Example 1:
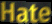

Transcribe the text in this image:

Hate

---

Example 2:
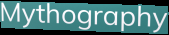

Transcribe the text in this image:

Mythography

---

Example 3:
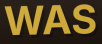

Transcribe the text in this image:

WAS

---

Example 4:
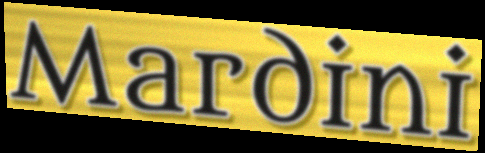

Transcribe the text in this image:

Mardini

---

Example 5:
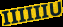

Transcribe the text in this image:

IIIIIIU